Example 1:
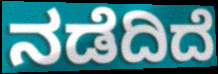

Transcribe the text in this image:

ನಡೆದಿದೆ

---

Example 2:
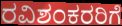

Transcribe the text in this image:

ರವಿಶಂಕರರಿಗೆ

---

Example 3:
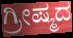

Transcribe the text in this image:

ಗ್ರೀಷ್ಮದ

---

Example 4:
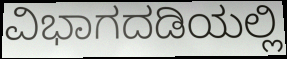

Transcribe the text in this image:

ವಿಭಾಗದಡಿಯಲ್ಲಿ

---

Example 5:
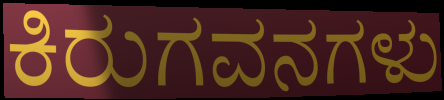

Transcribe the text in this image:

ಕಿರುಗವನಗಳು